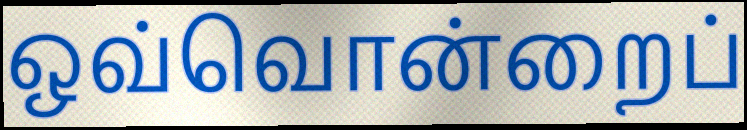
ஒவ்வொன்றைப்